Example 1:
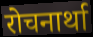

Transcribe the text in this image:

रोचनार्था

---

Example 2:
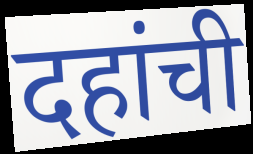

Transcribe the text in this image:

दहांची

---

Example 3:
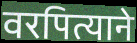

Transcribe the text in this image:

वरपित्याने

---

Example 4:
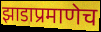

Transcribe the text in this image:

झाडाप्रमाणेच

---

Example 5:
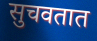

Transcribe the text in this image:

सुचवतात